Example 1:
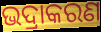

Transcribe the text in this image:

ଭଦ୍ରାକରଣ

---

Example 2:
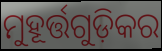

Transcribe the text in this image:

ମୁହୂର୍ତ୍ତଗୁଡ଼ିକର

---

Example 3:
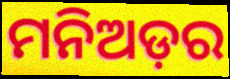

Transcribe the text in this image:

ମନିଅଡ଼ର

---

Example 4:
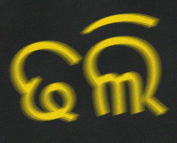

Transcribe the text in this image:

ଢଲି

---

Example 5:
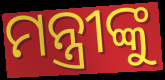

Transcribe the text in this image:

ମନ୍ତ୍ରୀଙ୍କୁ